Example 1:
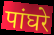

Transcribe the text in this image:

पांघरे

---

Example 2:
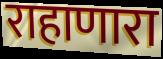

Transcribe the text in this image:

राहाणारा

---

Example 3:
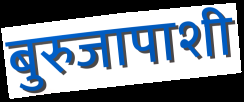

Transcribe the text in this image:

बुरुजापाशी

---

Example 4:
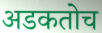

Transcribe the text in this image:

अडकतोच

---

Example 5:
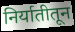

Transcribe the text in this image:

निर्यातीतून